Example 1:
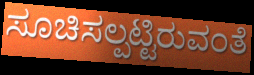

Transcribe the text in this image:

ಸೂಚಿಸಲ್ಪಟ್ಟಿರುವಂತೆ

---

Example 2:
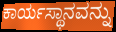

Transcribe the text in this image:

ಕಾರ್ಯಸ್ಥಾನವನ್ನು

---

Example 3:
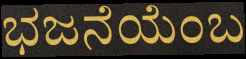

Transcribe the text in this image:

ಭಜನೆಯೆಂಬ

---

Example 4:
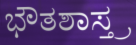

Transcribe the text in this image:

ಭೌತಶಾಸ್ತ್ರ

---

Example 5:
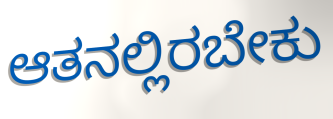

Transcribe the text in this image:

ಆತನಲ್ಲಿರಬೇಕು